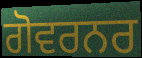
ਗੋਵਰਨਰ